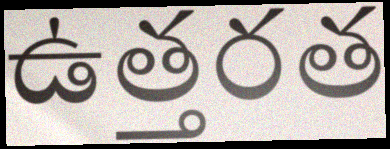
ఉత్తరత